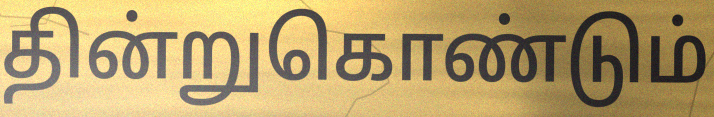
தின்றுகொண்டும்